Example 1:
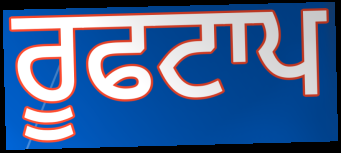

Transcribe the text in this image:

ਰੂਫਟਾਪ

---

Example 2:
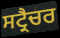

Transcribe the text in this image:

ਸਟ੍ਰੈਚਰ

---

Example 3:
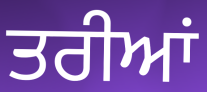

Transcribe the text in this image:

ਤਰੀਆਂ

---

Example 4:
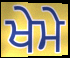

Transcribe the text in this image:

ਖੇਮੇ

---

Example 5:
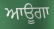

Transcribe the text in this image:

ਆਊਗਾ